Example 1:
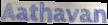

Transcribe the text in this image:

Aathavan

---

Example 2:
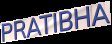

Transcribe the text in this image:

PRATIBHA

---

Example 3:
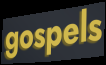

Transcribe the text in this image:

gospels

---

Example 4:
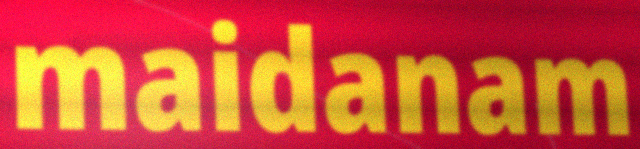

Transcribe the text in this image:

maidanam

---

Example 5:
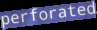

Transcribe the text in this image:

perforated